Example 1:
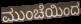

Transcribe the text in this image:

ಮುಂಚೆಯಿಂದ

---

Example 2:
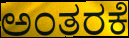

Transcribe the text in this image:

ಅಂತರಕೆ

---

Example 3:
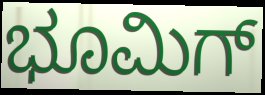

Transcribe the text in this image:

ಭೂಮಿಗ್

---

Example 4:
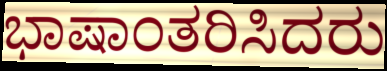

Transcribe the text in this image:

ಭಾಷಾಂತರಿಸಿದರು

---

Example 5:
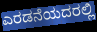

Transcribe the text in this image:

ಎರಡನೆಯದರಲ್ಲಿ